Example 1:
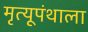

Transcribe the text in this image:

मृत्यूपंथाला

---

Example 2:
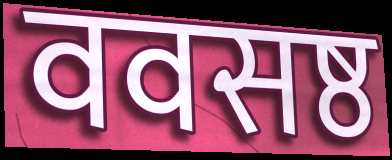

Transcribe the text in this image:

ववसष्ठ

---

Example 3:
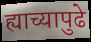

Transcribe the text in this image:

ह्याच्यापुढे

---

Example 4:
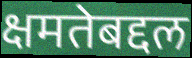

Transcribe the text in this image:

क्षमतेबद्दल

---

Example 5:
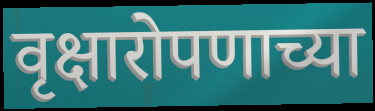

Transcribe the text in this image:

वृक्षारोपणाच्या